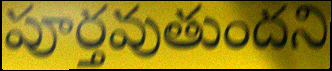
పూర్తవుతుందని